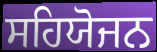
ਸਹਿਯੋਜਨ